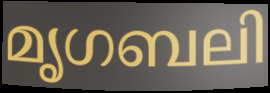
മൃഗബലി